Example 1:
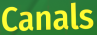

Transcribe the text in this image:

Canals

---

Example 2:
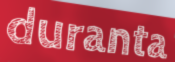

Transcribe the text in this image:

duranta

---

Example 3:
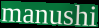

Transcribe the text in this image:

manushi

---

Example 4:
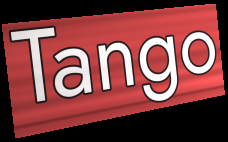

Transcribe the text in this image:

Tango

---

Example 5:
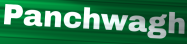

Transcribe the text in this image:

Panchwagh